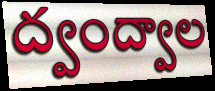
ద్వంద్వాల